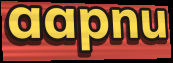
aapnu